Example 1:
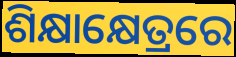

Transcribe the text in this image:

ଶିକ୍ଷାକ୍ଷେତ୍ରରେ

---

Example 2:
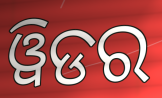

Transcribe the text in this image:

ୱିଡର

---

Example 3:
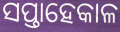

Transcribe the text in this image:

ସପ୍ତାହେକାଳ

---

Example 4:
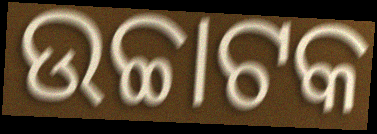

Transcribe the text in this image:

ଉଚ୍ଚାଟକ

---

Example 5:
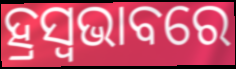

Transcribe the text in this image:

ହ୍ରସ୍ୱଭାବରେ